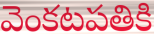
వెంకటపతికి